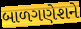
બાળગણેશને